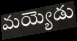
మయ్యెడు